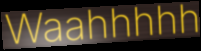
Waahhhhh